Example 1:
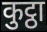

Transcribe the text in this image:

कुट्ठा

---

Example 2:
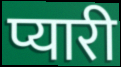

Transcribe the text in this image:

प्यारी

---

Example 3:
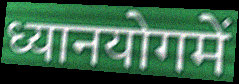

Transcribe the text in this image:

ध्यानयोगमें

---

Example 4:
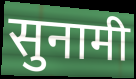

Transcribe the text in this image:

सुनामी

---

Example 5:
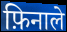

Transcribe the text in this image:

फ़िनाले